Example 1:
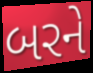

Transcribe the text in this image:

બરને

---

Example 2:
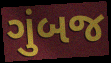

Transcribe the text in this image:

ગુંબજ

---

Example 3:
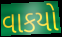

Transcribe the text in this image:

વાકયો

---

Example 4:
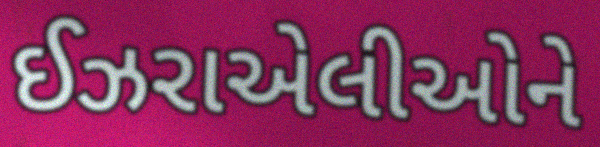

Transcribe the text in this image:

ઈઝરાએલીઓને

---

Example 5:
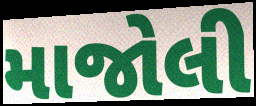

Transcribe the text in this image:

માજોલી